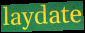
laydate